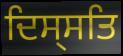
ਦਿਸ੍ਸਤਿ